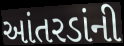
આંતરડાંની